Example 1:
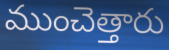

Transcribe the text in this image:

ముంచెత్తారు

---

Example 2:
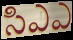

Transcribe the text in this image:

సిఎఎ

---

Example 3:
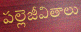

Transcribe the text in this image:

పల్లెజీవితాలు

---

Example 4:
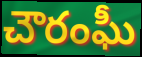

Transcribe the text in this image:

చౌరంఘీ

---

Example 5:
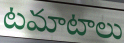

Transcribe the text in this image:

టమాటాలు